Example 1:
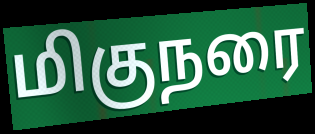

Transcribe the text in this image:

மிகுநரை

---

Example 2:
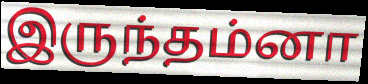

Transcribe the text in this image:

இருந்தம்னா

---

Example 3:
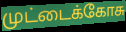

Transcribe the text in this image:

முட்டைக்கோசு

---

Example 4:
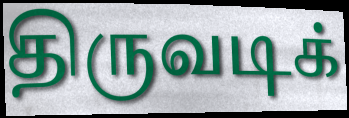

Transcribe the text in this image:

திருவடிக்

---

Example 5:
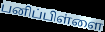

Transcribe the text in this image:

பனிப்பிள்ளை